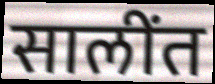
सालींत